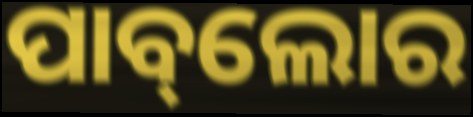
ପାବ୍‌ଲୋର